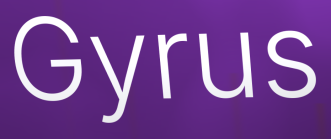
Gyrus